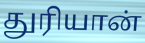
துரியான்